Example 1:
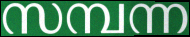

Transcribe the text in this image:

സമ്പന്ന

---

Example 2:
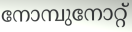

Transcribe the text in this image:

നോമ്പുനോറ്റ്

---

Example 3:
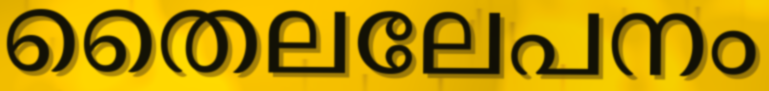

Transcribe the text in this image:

തൈലലേപനം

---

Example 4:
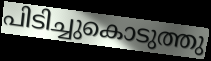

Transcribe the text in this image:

പിടിച്ചുകൊടുത്തു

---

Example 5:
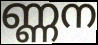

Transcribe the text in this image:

ണ്ണന